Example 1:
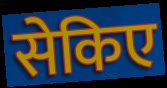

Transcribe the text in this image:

सेकिए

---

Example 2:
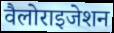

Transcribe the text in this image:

वैलोराइजेशन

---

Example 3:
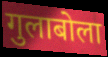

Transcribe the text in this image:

गुलाबोला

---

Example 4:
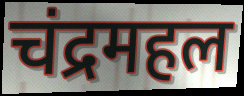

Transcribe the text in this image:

चंद्रमहल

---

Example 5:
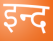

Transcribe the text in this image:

इन्द